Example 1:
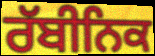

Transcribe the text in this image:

ਰੱਬੀਨਿਕ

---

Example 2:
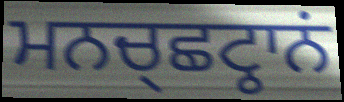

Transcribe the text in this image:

ਮਨਚ੍ਛਟ੍ਠਾਨਂ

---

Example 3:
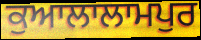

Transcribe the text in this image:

ਕੁਆਲਾਲਾਮਪੁਰ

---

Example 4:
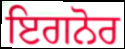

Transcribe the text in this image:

ਇਗਨੋਰ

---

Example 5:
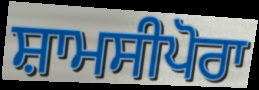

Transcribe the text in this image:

ਸ਼ਾਮਸੀਪੋਰਾ